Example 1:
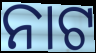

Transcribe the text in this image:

ନାଟ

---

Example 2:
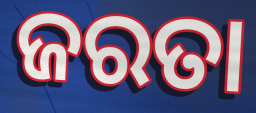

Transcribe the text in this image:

ଜରତା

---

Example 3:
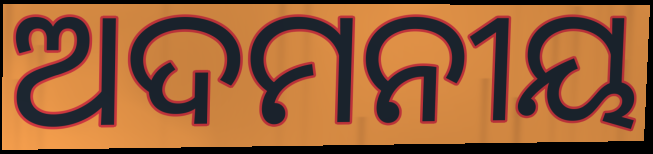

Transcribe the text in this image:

ଅଦମନୀୟ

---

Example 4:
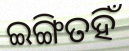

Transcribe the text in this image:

ଇଙ୍ଗିତହିଁ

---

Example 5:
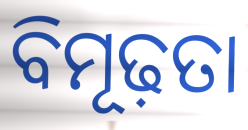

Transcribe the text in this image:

ବିମୂଢ଼ତା